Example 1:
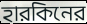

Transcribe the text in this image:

হারকিনের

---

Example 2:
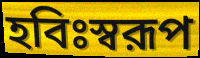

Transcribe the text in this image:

হবিঃস্বরূপ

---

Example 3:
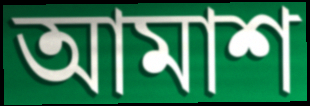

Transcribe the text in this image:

আমাশ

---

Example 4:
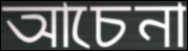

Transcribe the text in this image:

আচেনা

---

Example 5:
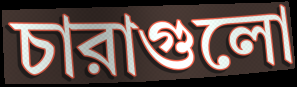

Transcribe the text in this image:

চারাগুলো